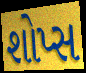
શોપ્સ